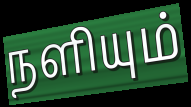
நளியும்